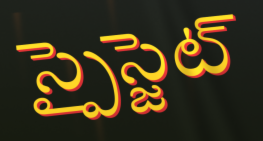
స్పైస్జెట్